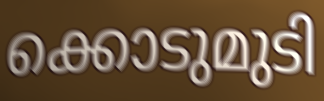
ക്കൊടുമുടി